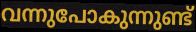
വന്നുപോകുന്നുണ്ട്